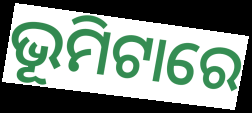
ଭୂମିଟାରେ